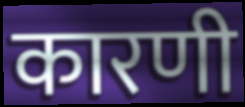
कारणी